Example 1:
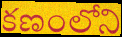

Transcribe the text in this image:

కణంలోని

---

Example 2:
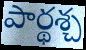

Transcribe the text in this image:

పార్థశ్చ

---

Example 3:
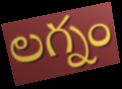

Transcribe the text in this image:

లగ్నం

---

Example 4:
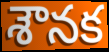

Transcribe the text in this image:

శౌనక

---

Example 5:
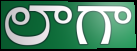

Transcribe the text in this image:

లాగా